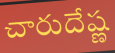
చారుదేష్ణ